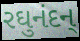
રઘુનંદન્